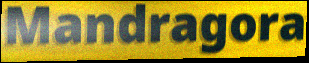
Mandragora